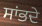
ਸਾਂਭਦੇ